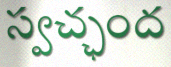
స్వచ్ఛంద